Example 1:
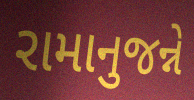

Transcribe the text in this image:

રામાનુજન્ને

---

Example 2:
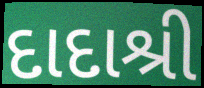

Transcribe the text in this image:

દાદાશ્રી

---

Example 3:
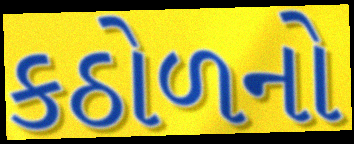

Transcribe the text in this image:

કઠોળનો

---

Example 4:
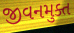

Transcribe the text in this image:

જીવનમુક્ત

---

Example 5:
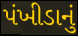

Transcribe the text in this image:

પંખીડાનું